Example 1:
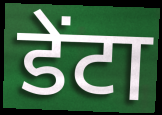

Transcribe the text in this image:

डेंटा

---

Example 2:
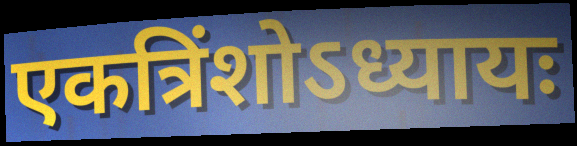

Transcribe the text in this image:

एकत्रिंशोऽध्यायः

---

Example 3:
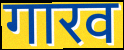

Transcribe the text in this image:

गारव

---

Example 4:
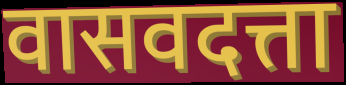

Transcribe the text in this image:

वासवदत्ता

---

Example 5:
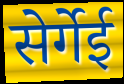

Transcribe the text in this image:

सेर्गेई